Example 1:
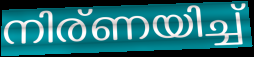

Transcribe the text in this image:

നിര്ണയിച്ച്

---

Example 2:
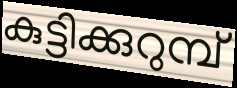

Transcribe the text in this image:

കുട്ടിക്കുറുമ്പ്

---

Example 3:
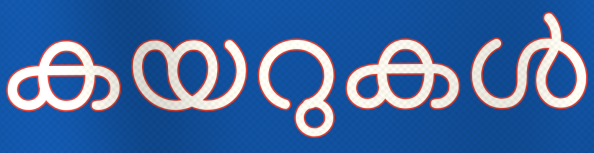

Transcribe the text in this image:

കയറുകൾ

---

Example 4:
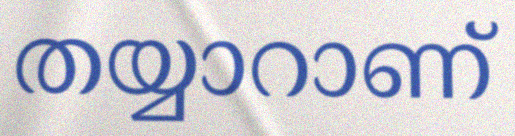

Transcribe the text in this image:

തയ്യാറാണ്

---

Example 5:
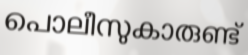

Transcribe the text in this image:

പൊലീസുകാരുണ്ട്